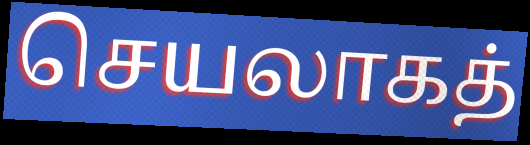
செயலாகத்